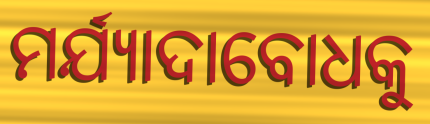
ମର୍ଯ୍ୟାଦାବୋଧକୁ